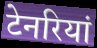
टेनरियां